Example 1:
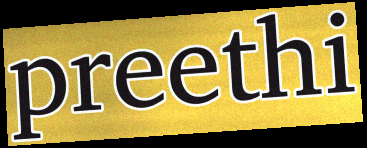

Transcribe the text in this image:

preethi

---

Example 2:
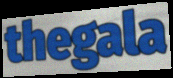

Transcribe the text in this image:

thegala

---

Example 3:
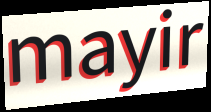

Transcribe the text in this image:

mayir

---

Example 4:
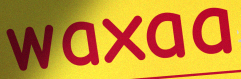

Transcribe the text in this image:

waxaa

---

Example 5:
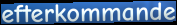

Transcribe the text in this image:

efterkommande